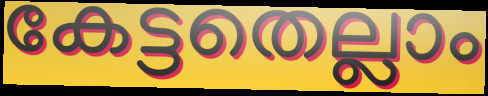
കേട്ടതെല്ലാം